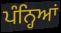
ਪੰਨ੍ਹਿਆਂ